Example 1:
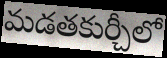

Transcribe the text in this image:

మడతకుర్చీలో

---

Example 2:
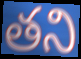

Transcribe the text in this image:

తని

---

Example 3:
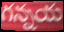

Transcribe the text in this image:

గన్నయ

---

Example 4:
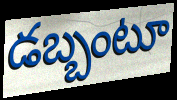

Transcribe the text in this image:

డబ్బంటూ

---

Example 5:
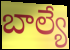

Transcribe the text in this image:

బాల్యే